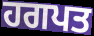
ਹਗਪਤ